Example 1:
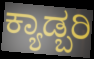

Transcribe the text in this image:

ಕ್ಯಾಡ್ಬರಿ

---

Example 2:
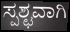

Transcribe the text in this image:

ಸ್ಪಶ್ಟವಾಗಿ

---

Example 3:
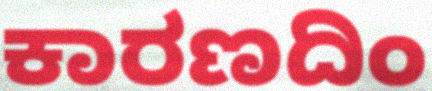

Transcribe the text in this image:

ಕಾರಣದಿಂ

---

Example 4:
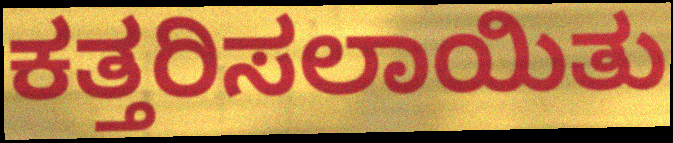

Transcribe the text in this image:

ಕತ್ತರಿಸಲಾಯಿತು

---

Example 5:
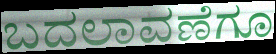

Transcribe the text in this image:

ಬದಲಾವಣೆಗೂ